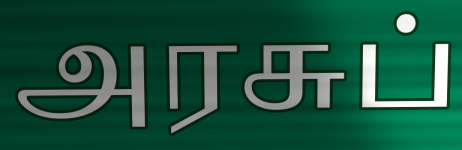
அரசுப்